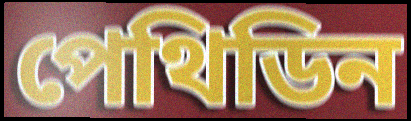
পেথিডিন